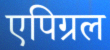
एपिग्रल